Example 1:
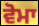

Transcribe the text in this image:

ਵੋਮਾ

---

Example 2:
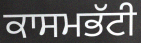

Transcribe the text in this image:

ਕਾਸਮਭੱਟੀ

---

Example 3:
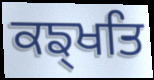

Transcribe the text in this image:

ਕਙ੍ਖਤਿ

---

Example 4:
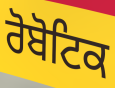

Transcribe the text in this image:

ਰੋਬੋਟਿਕ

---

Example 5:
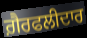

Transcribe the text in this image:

ਗ਼ੈਰਫਲੀਦਾਰ